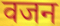
वजन